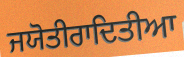
ਜਯੋਤੀਰਾਦਿਤੀਆ